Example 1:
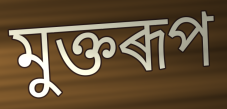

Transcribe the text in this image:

মুক্তৰূপ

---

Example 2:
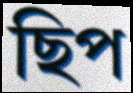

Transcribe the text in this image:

ছিপ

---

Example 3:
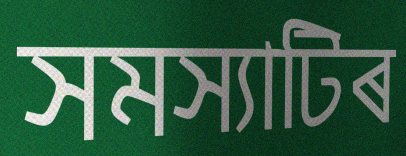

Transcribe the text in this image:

সমস্যাটিৰ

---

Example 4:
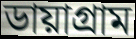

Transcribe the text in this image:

ডায়াগ্ৰাম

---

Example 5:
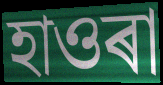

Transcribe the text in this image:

হাওৰা